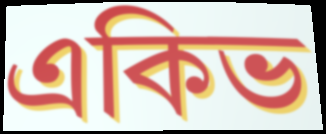
একিভ